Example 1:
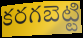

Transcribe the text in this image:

కరగబెట్టి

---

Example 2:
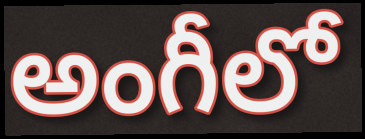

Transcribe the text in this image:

అంగీలో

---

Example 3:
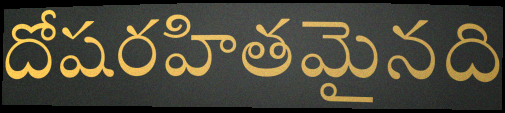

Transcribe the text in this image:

దోషరహితమైనది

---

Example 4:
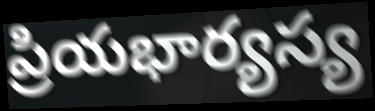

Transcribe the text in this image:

ప్రియభార్యస్య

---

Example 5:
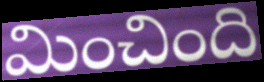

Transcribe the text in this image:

మించింది